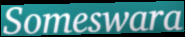
Someswara